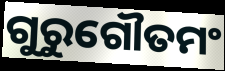
ଗୁରୁଗୌତମଂ